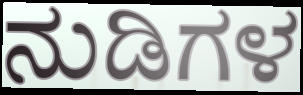
ನುಡಿಗಳ